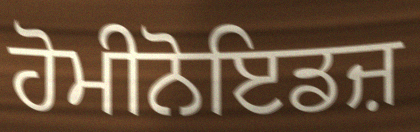
ਹੋਮੀਨੋਇਡਜ਼